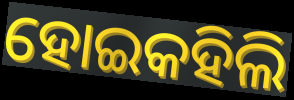
ହୋଇକହିଲି